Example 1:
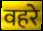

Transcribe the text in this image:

वहरे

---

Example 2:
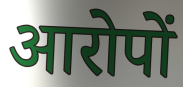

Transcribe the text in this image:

आरोपों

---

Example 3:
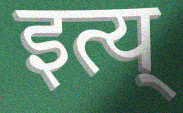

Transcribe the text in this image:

इत्य्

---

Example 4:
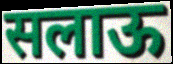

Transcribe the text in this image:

सलाऊ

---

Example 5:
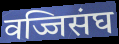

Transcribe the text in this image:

वज्जिसंघ